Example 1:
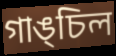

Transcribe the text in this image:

গাঙ্‌চিল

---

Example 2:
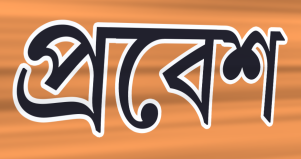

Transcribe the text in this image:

প্রবেশ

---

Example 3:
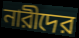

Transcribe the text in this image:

নারীদের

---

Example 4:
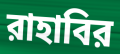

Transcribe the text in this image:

রাহাবির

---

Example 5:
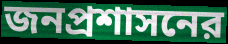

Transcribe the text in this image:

জনপ্রশাসনের